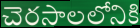
చెరసాలలోనికి